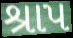
શ્રાપ